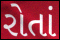
રોતાં